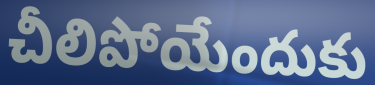
చీలిపోయేందుకు